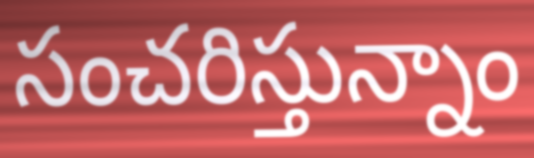
సంచరిస్తున్నాం